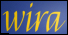
wira